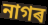
নাগৰ